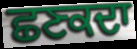
ਛਣਕਦਾ